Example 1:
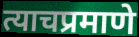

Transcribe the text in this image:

त्याचप्रमाणे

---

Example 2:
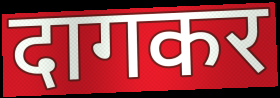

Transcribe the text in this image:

दागकर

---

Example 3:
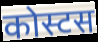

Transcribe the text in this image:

कोस्टस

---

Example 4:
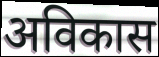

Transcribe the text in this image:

अविकास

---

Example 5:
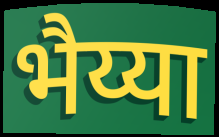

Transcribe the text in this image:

भैय्या